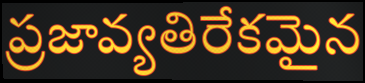
ప్రజావ్యతిరేకమైన